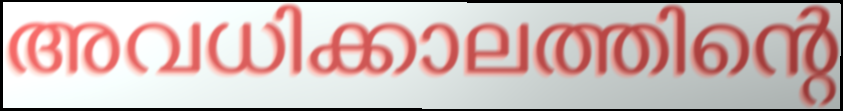
അവധിക്കാലത്തിന്റെ